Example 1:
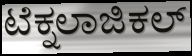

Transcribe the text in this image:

ಟೆಕ್ನಲಾಜಿಕಲ್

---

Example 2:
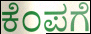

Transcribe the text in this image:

ಕೆಂಪಗೆ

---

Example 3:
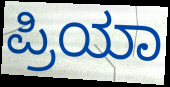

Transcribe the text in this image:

ಪ್ರಿಯಾ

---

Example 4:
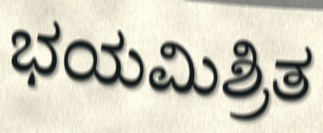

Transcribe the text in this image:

ಭಯಮಿಶ್ರಿತ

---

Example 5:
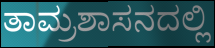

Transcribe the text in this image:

ತಾಮ್ರಶಾಸನದಲ್ಲಿ